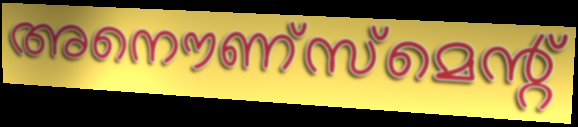
അനൌണ്സ്മെന്റ്